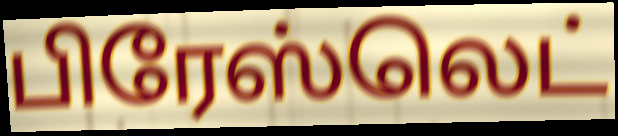
பிரேஸ்லெட்